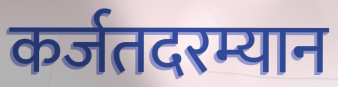
कर्जतदरम्यान